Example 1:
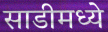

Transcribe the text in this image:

साडीमध्ये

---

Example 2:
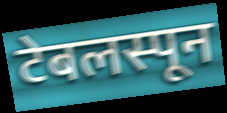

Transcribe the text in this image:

टेबलस्पून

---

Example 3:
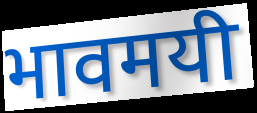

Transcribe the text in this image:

भावमयी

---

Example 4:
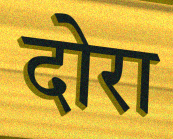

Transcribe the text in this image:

दोरा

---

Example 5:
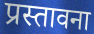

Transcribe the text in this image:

प्रस्तावना